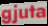
gjuta